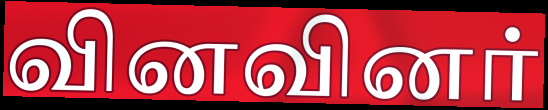
வினவினர்